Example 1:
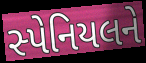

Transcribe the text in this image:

સ્પેનિયલને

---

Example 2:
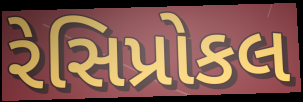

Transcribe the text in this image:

રેસિપ્રોકલ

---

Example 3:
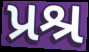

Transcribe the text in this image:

પ્રશ્ર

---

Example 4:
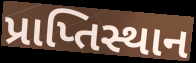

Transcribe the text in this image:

પ્રાપ્તિસ્થાન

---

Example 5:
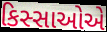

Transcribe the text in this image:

કિસ્સાઓએ